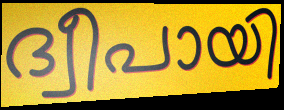
ദ്വീപായി